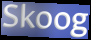
Skoog